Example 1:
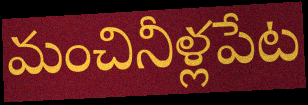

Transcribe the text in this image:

మంచినీళ్లపేట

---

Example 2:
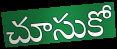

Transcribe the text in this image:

చూసుకో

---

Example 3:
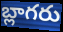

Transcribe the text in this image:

బ్లాగరు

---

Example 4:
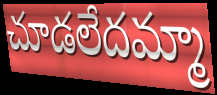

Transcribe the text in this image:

చూడలేదమ్మా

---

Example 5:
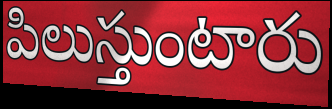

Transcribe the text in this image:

పిలుస్తుంటారు